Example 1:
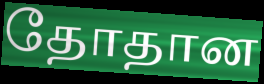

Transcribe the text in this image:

தோதான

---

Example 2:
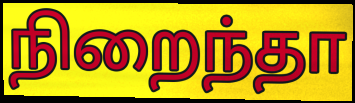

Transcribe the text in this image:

நிறைந்தா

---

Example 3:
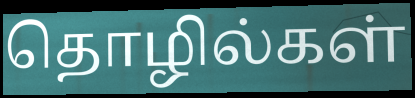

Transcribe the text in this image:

தொழில்கள்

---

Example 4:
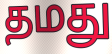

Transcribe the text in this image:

தமது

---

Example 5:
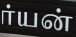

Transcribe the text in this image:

ர்யன்